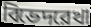
বিভেদরেখা